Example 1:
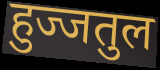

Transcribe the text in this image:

हुज्जतुल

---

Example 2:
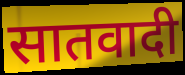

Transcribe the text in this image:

सातवादी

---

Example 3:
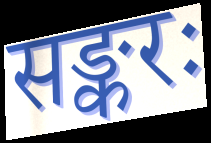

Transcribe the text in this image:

सङ्करः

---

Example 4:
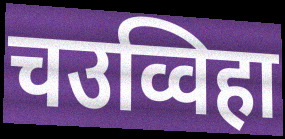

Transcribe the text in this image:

चउव्विहा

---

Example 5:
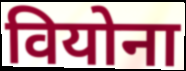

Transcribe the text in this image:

वियोना